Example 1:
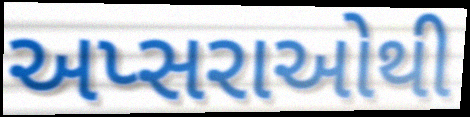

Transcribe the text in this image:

અપ્સરાઓથી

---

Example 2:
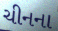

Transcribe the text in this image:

ચીનના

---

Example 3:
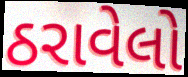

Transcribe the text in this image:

ઠરાવેલો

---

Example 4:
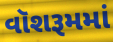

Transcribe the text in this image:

વૉશરૂમમાં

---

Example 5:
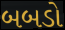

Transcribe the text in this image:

બબડો